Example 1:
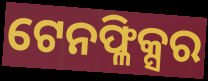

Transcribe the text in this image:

ଟେନଫ୍ଳିକ୍ସର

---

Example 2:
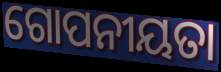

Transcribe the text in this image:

ଗୋପନୀୟତା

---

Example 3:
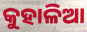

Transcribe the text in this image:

କୁହାଳିଆ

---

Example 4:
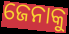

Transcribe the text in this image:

ଜେନାକୁ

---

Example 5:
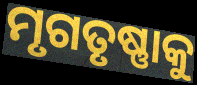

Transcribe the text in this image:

ମୃଗତୃଷ୍ଣାକୁ